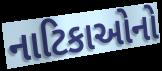
નાટિકાઓનો